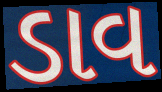
ડાવ